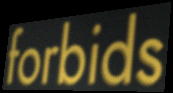
forbids